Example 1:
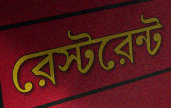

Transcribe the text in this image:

রেস্টরেন্ট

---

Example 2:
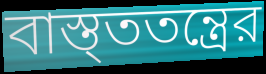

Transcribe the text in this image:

বাস্ত্ততন্ত্রের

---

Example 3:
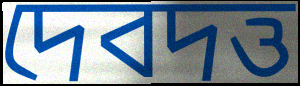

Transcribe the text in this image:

দেবদত্ত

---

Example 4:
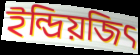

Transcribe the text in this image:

ইন্দ্রিয়জিৎ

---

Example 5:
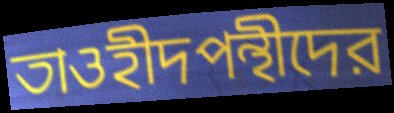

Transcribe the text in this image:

তাওহীদপন্থীদের